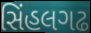
સિંહલગઢ